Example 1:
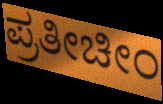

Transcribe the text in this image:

ಪ್ರತೀಚೀಂ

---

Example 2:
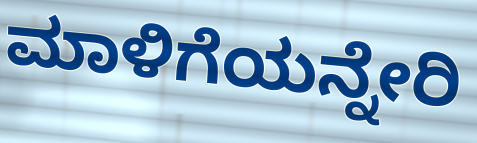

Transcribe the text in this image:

ಮಾಳಿಗೆಯನ್ನೇರಿ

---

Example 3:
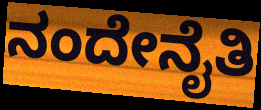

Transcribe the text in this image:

ನಂದೇನೈತಿ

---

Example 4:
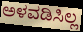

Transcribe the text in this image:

ಅಳವಡಿಸಿಲ್ಲ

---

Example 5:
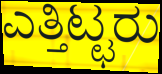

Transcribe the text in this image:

ಎತ್ತಿಟ್ಟರು